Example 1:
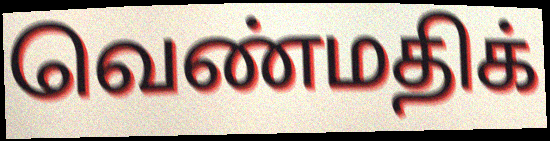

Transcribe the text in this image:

வெண்மதிக்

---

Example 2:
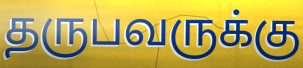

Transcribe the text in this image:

தருபவருக்கு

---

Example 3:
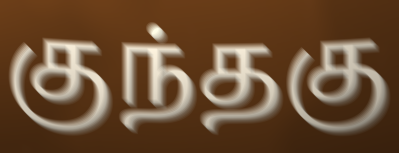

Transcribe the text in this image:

குந்தகு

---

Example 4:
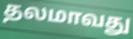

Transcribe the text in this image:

தலமாவது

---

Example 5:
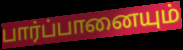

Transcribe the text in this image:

பார்ப்பானையும்